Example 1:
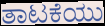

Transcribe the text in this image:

ತಾಟಕೆಯು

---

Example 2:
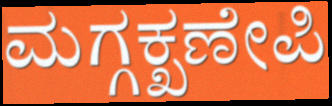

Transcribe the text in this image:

ಮಗ್ಗಕ್ಖಣೇಪಿ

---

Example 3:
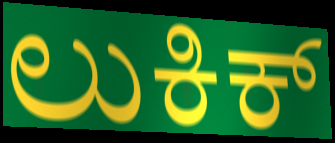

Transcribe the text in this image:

ಲುಕಿಕ್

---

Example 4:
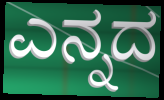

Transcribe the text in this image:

ಎನ್ನದ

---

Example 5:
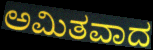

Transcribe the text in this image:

ಅಮಿತವಾದ